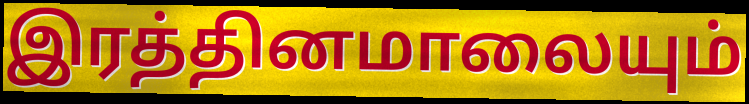
இரத்தினமாலையும்